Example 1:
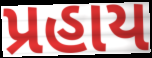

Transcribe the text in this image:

પ્રહાય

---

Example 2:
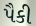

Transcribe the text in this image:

પૈકી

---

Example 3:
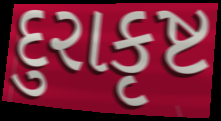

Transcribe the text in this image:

દુરાકૃષ્ટ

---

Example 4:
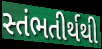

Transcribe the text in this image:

સ્તંભતીર્થથી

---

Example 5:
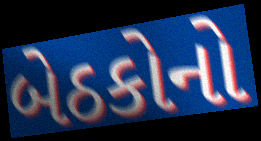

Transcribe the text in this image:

બેઠકોનો